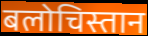
बलोचिस्तान